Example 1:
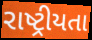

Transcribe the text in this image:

રાષ્ટ્રીયતા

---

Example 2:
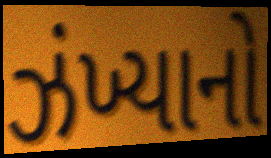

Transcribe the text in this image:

ઝંખ્યાનો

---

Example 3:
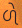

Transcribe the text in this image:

ળે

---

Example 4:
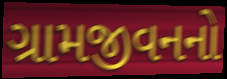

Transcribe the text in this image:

ગ્રામજીવનનો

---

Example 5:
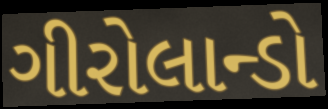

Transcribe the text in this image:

ગીરોલાન્ડો